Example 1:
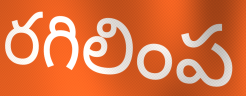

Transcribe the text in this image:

రగిలింప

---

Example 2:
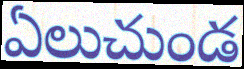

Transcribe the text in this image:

ఏలుచుండ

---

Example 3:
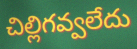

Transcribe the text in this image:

చిల్లిగవ్వలేదు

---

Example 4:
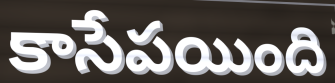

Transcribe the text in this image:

కాసేపయింది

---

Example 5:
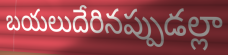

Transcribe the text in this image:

బయలుదేరినప్పుడల్లా